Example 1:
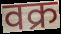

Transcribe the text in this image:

वक्र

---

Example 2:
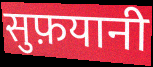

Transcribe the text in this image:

सुफ़यानी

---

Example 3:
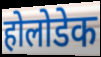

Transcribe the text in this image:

होलोडेक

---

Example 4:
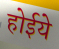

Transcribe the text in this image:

होईये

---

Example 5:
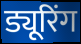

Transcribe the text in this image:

ड्यूरिंग